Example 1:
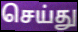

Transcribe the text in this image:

செய்து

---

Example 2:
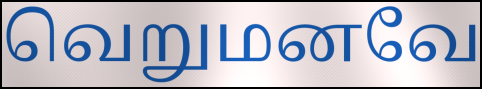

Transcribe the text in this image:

வெறுமனவே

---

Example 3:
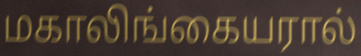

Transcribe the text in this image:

மகாலிங்கையரால்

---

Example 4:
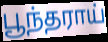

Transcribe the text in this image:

பூந்தராய்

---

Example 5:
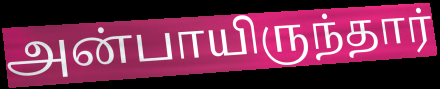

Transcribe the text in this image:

அன்பாயிருந்தார்